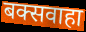
बक्सवाहा